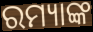
ରମ୍ୟାଙ୍କ